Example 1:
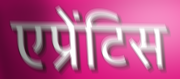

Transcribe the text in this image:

एप्रेंटिस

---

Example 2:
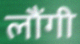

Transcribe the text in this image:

लौंगी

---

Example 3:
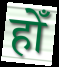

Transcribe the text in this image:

होँ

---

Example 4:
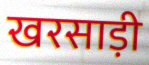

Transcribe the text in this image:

खरसाड़ी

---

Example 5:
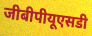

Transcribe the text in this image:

जीबीपीयूएसडी